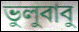
ভুলুবাবু